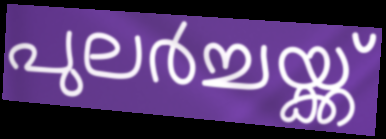
പുലർച്ചയ്ക്ക്